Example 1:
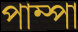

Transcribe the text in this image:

পাম্পা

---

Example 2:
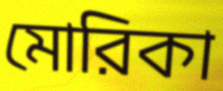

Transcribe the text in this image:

মোরিকা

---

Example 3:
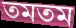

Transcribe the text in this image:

তমতম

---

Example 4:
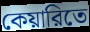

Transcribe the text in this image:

কেয়ারিতে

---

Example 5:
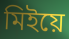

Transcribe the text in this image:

মিইয়ে